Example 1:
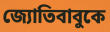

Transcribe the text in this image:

জ্যোতিবাবুকে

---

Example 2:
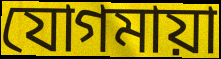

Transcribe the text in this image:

যোগমায়া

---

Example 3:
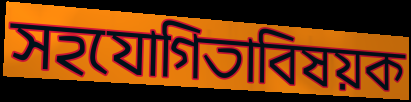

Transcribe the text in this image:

সহযোগিতাবিষয়ক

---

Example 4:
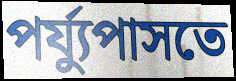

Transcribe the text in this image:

পর্য্যুপাসতে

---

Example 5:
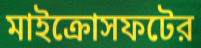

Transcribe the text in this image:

মাইক্রোসফটের